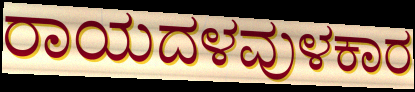
ರಾಯದಳವುಳಕಾರ